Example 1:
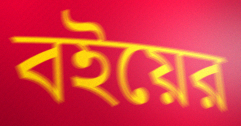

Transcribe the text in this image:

বইয়ের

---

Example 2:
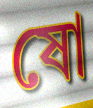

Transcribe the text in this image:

ষো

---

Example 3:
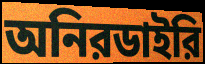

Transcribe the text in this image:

অনিরডাইরি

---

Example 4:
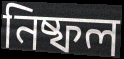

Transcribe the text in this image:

নিষ্ফল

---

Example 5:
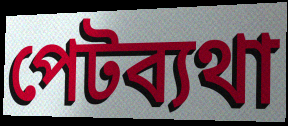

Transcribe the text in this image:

পেটব্যথা